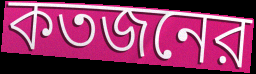
কতজনের